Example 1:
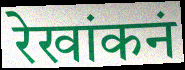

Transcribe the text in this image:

रेखांकनं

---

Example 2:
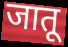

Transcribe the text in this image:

जातू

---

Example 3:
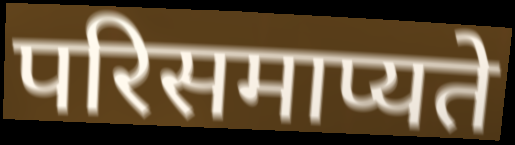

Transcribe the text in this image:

परिसमाप्यते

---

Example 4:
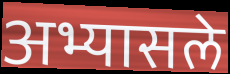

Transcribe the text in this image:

अभ्यासले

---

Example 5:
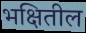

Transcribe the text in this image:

भक्षितील